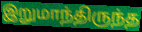
இறுமாந்திருந்த